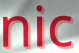
nic